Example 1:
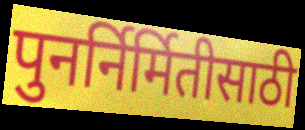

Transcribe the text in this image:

पुनर्निर्मितीसाठी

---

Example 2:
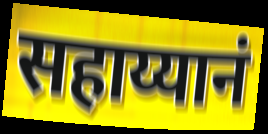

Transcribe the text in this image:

सहाय्यानं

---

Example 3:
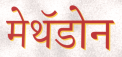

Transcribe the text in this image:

मेथॅडोन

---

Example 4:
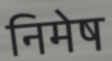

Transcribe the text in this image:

निमेष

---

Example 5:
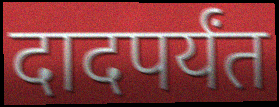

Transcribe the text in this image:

दादपर्यंत